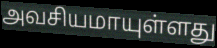
அவசியமாயுள்ளது